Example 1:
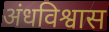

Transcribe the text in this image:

अंधविश्वास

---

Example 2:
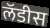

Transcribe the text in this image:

लॅडीस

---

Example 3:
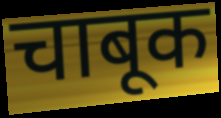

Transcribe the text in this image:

चाबूक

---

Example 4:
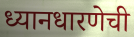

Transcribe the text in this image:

ध्यानधारणेची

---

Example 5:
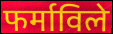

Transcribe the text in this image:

फर्माविले